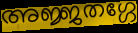
അജ്ജതഗ്ഗേ